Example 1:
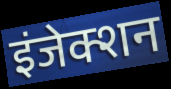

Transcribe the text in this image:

इंजेक्शन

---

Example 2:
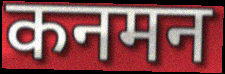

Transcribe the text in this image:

कनमन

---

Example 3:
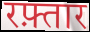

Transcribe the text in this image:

रफ़्तार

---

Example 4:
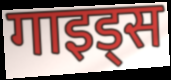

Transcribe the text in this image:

गाइड्स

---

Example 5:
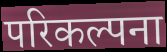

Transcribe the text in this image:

परिकल्पना